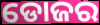
ଡୋଜର